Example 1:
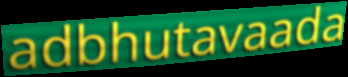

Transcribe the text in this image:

adbhutavaada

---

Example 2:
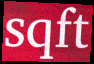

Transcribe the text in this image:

sqft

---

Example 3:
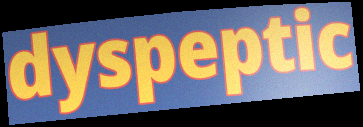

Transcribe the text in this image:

dyspeptic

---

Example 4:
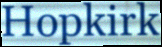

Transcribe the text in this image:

Hopkirk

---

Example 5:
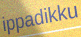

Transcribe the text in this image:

ippadikku